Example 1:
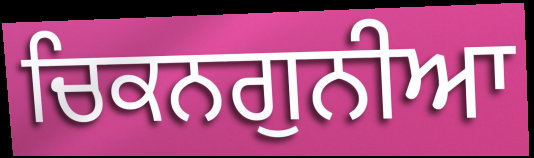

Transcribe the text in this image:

ਚਿਕਨਗੁਨੀਆ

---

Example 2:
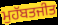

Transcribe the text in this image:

ਮੁਹੱਬਤਜੀਤ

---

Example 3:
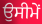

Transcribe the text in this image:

ਉਸੀਮੇਂ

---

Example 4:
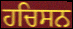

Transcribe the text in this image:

ਹਚਿਸਨ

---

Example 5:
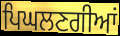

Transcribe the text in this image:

ਪਿਘਲਣਗੀਆਂ